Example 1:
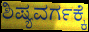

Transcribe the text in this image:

ಶಿಷ್ಯವರ್ಗಕ್ಕೆ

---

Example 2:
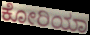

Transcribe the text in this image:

ಕೋರಿಯಾ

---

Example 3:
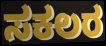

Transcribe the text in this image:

ಸಕಲರ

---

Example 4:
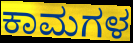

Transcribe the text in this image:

ಕಾಮಗಳ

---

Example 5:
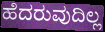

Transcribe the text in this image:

ಹೆದರುವುದಿಲ್ಲ